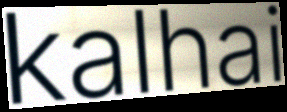
kalhai